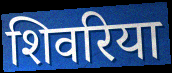
शिवरिया